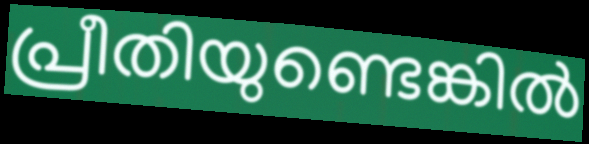
പ്രീതിയുണ്ടെങ്കിൽ